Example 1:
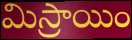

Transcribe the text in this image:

మిస్రాయిం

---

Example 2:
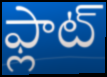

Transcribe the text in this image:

ఫ్లాట్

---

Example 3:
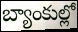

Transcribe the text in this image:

బ్యాంకుల్లో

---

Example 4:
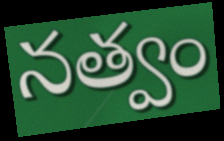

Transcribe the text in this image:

నత్వం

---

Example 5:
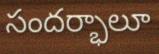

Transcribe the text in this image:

సందర్భాలూ